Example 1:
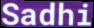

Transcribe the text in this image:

Sadhi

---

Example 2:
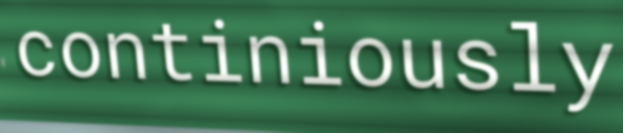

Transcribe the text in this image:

continiously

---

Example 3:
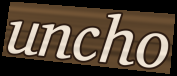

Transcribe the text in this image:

uncho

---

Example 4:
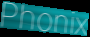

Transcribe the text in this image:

Phonix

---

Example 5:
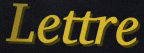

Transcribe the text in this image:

Lettre